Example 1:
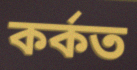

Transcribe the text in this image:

কৰ্কত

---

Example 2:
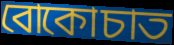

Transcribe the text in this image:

বোকোচাত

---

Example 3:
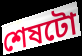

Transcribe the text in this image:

শেষটো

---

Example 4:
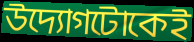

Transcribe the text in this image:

উদ্যোগটোকেই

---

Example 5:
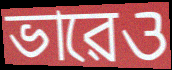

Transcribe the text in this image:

ভাৱেও